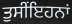
ਤੁਸੀਂਇਹਨਾਂ